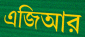
এজিআর